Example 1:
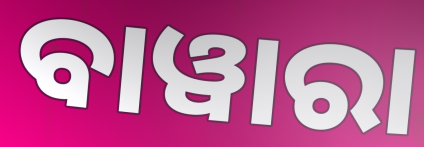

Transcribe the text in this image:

ବାୱାରା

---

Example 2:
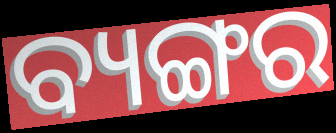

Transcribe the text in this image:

ବ୍ୟଙ୍ଗର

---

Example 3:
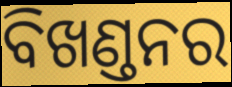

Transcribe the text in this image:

ବିଖଣ୍ଡନର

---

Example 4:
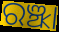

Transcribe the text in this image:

ରଞ୍ଝା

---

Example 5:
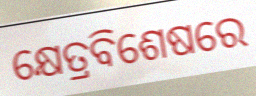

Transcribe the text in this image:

କ୍ଷେତ୍ରବିଶେଷରେ